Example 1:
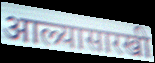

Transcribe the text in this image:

आल्यासारखी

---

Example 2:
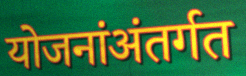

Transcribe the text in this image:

योजनांअंतर्गत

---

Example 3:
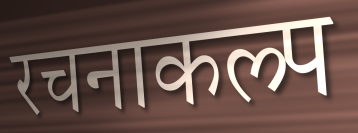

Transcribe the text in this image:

रचनाकल्प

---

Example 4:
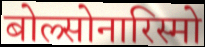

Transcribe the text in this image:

बोल्सोनारिस्मो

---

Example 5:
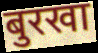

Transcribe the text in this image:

बुरखा